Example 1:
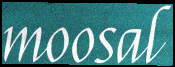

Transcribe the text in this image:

moosal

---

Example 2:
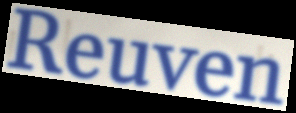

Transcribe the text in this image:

Reuven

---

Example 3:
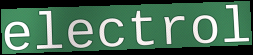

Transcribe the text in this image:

electrol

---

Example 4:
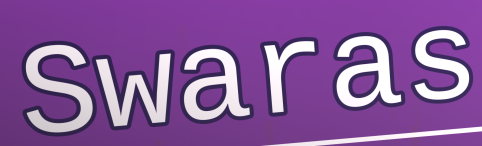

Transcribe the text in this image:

Swaras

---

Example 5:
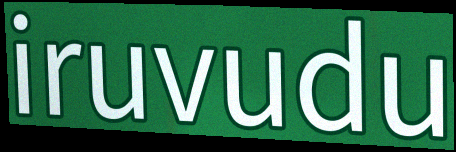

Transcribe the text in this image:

iruvudu